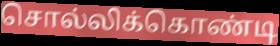
சொல்லிக்கொண்டி